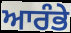
ਆਰੰਭੇ